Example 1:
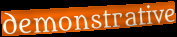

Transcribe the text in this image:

demonstrative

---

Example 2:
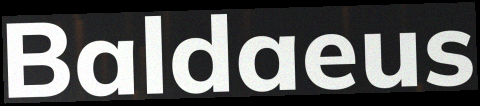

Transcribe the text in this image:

Baldaeus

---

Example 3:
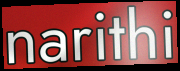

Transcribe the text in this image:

narithi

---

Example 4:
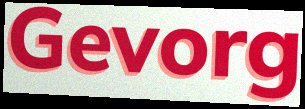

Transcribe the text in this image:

Gevorg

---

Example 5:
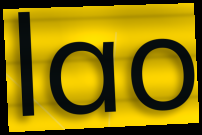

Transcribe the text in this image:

lao